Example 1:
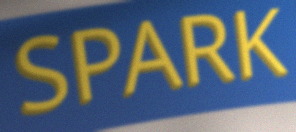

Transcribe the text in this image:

SPARK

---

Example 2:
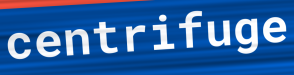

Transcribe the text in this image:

centrifuge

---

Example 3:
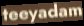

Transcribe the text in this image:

teeyadam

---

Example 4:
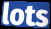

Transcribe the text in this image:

lots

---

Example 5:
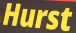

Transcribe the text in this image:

Hurst